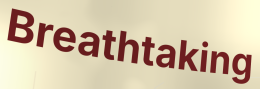
Breathtaking